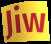
Jiw